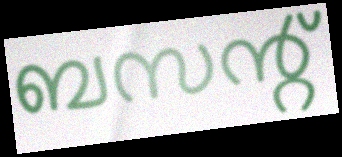
ബസന്റ്